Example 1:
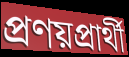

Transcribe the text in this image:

প্ৰণয়প্ৰাৰ্থী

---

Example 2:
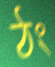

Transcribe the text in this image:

ঠং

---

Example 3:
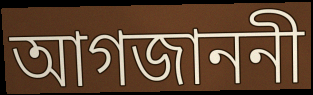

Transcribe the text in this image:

আগজাননী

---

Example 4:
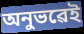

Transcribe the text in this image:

অনুভৱেই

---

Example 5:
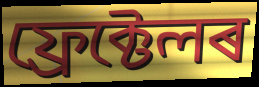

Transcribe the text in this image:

ফ্ৰেক্টেলৰ